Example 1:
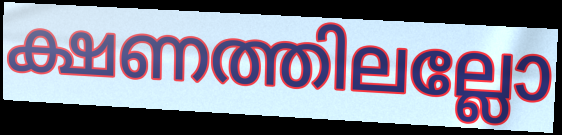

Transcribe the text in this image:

ക്ഷണത്തിലല്ലോ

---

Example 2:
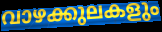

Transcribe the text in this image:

വാഴക്കുലകളും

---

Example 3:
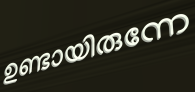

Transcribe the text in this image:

ഉണ്ടായിരുന്നേ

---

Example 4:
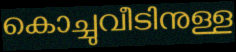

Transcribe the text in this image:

കൊച്ചുവീടിനുള്ള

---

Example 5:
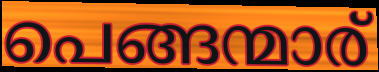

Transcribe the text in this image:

പെങ്ങന്മാര്